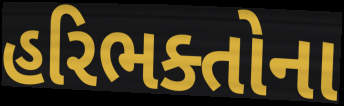
હરિભક્તોના